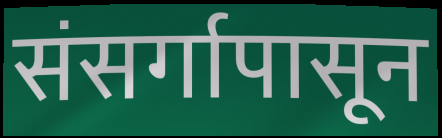
संसर्गापासून